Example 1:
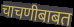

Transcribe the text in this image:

चाचणीबाबत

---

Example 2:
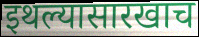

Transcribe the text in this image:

इथल्यासारखाच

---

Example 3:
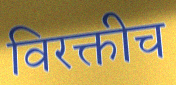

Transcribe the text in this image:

विरक्तीच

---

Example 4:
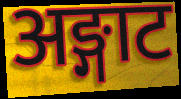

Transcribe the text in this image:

अङ्गाट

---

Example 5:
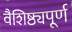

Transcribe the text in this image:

वैशिष्ठ्यपूर्ण